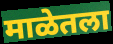
माळेतला